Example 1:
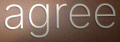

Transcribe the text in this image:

agree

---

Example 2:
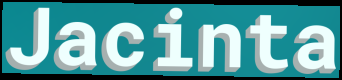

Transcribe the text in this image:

Jacinta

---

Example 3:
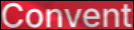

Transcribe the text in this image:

Convent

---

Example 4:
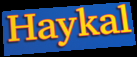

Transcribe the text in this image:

Haykal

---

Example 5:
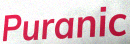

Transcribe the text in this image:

Puranic